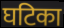
घटिका